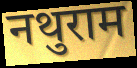
नथुराम